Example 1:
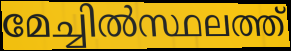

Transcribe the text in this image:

മേച്ചിൽസ്ഥലത്ത്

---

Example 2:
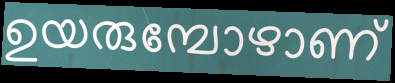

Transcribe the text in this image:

ഉയരുമ്പോഴാണ്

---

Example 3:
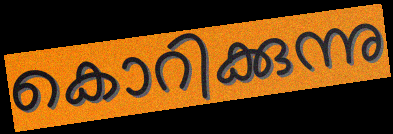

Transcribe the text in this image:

കൊറിക്കുന്നു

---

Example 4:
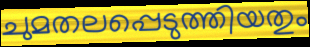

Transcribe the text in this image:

ചുമതലപ്പെടുത്തിയതും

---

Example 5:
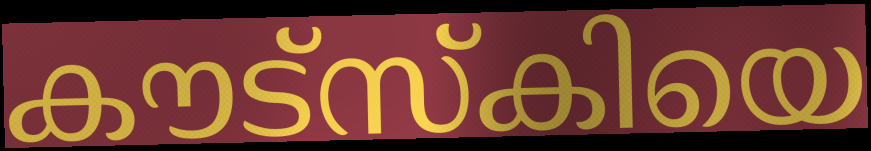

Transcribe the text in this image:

കൗട്സ്കിയെ